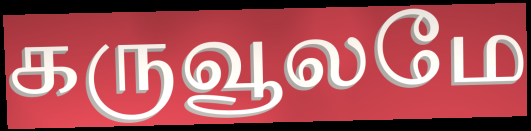
கருவூலமே